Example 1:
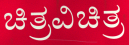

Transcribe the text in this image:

ಚಿತ್ರವಿಚಿತ್ರ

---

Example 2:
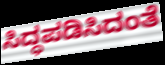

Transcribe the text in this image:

ಸಿದ್ಧಪಡಿಸಿದಂತೆ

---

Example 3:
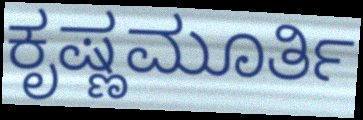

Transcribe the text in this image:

ಕೃಷ್ಣಮೂರ್ತಿ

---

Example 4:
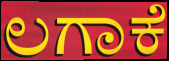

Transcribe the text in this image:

ಲಗಾಕೆ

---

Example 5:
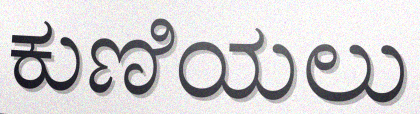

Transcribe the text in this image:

ಕುಣಿಯಲು